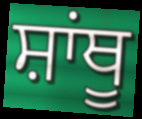
ਸ਼ਾਂਥੂ